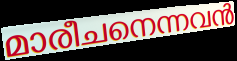
മാരീചനെന്നവൻ